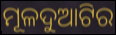
ମୂଳଦୁଆଟିର